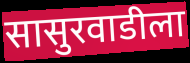
सासुरवाडीला